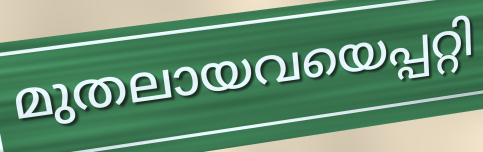
മുതലായവയെപ്പറ്റി